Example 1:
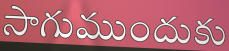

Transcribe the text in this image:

సాగుముందుకు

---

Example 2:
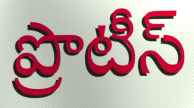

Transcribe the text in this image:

ప్రొటీస్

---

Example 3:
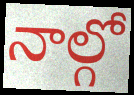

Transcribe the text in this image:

నాల్గో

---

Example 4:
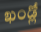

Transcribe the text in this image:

ఖండ్లో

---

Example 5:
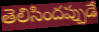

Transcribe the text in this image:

తెలిసిందప్పుడే